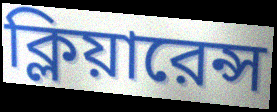
ক্লিয়ারেন্স